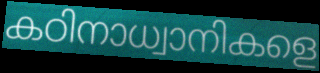
കഠിനാധ്വാനികളെ